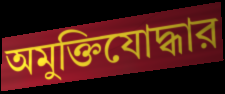
অমুক্তিযোদ্ধার